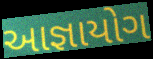
આજ્ઞાયોગ